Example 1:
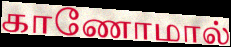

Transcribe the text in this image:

காணோமால்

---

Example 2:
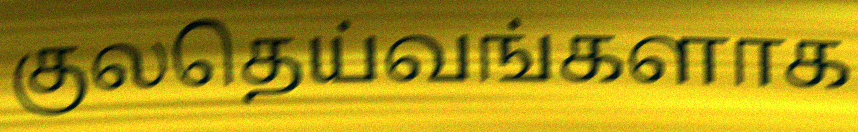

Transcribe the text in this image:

குலதெய்வங்களாக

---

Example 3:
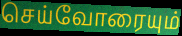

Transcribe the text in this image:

செய்வோரையும்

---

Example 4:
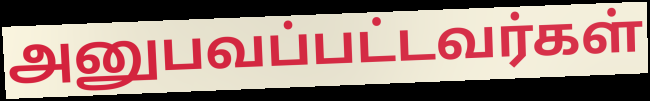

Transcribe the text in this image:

அனுபவப்பட்டவர்கள்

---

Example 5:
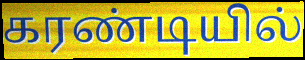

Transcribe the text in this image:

கரண்டியில்